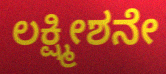
ಲಕ್ಷ್ಮೀಶನೇ